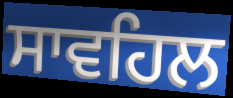
ਸਾਵਹਿਲ